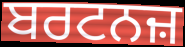
ਬਰਟਨਜ਼